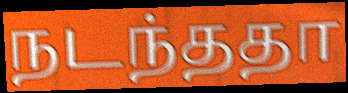
நடந்ததா